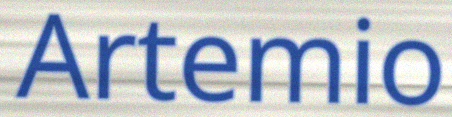
Artemio